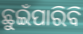
ଛୁଇଁପାରିବି